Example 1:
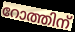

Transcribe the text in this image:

റോത്തിന്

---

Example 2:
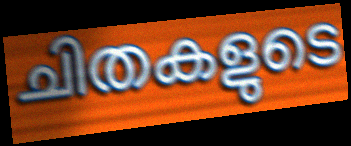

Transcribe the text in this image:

ചിതകളുടെ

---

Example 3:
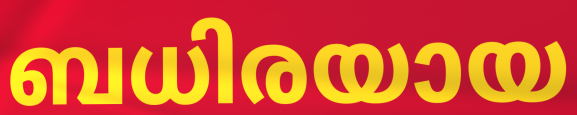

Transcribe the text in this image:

ബധിരയായ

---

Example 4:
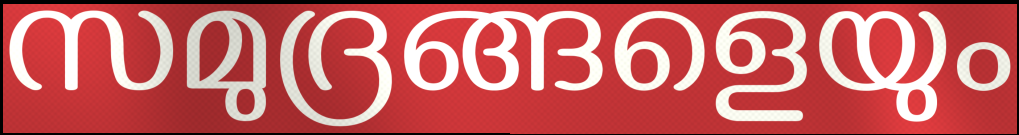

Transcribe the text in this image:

സമുദ്രങ്ങളെയും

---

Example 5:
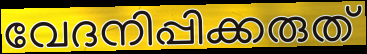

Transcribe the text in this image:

വേദനിപ്പിക്കരുത്